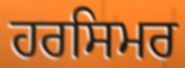
ਹਰਸਿਮਰ